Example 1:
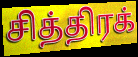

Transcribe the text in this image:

சித்திரக்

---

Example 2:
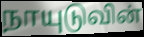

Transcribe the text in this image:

நாயுடுவின்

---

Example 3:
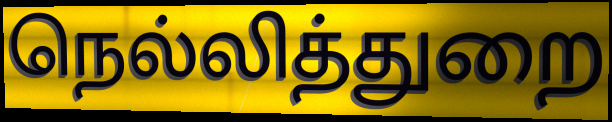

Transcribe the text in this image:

நெல்லித்துறை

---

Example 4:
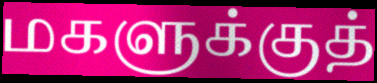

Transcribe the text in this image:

மகளுக்குத்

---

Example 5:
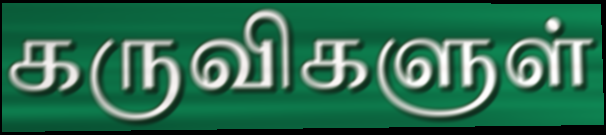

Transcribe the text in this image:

கருவிகளுள்